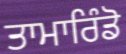
ਤਾਮਾਰਿੰਡੋ